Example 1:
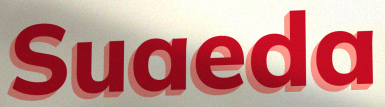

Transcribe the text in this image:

Suaeda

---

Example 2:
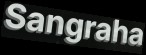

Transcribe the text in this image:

Sangraha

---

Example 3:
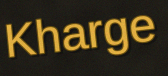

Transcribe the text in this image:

Kharge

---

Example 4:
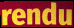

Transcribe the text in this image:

rendu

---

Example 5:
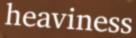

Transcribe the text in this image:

heaviness